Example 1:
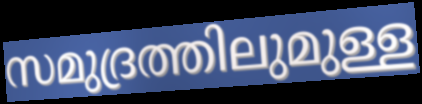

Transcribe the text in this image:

സമുദ്രത്തിലുമുള്ള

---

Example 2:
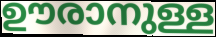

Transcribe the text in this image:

ഊരാനുള്ള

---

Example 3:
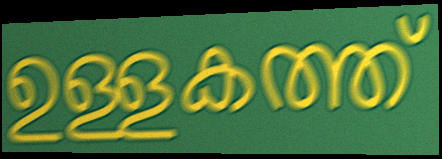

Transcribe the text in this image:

ഉള്ളകത്ത്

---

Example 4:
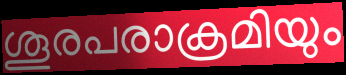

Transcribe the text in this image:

ശൂരപരാക്രമിയും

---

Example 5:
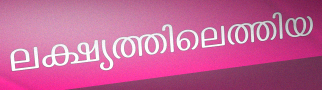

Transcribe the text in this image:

ലക്ഷ്യത്തിലെത്തിയ